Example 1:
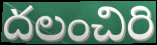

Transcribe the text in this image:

దలంచిరి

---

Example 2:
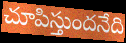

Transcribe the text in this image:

చూపిస్తుందనేది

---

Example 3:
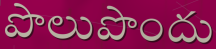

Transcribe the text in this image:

పొలుపొందు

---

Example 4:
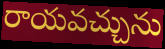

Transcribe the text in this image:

రాయవచ్చును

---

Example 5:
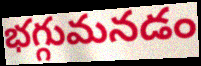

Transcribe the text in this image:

భగ్గుమనడం